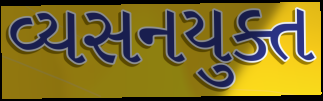
વ્યસનયુક્ત